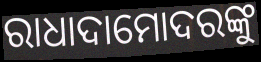
ରାଧାଦାମୋଦରଙ୍କୁ